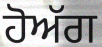
ਹੋਅੱਗ